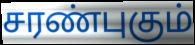
சரண்புகும்